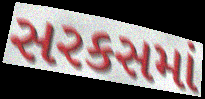
સરકસમાં